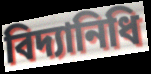
বিদ্যানিধি